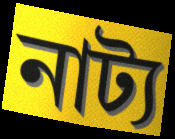
নাট্য